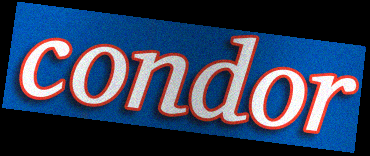
condor